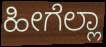
ಹೀಗೆಲ್ಲಾ